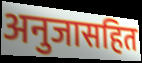
अनुजासहित